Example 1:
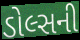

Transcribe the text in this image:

ડોલ્સની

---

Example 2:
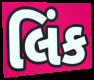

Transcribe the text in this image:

લિંક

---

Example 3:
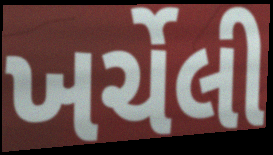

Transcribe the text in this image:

ખર્ચેલી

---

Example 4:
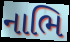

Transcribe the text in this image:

નાભિ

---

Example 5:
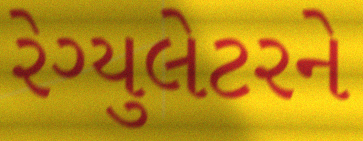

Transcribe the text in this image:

રેગ્યુલેટરને